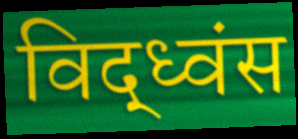
विद्ध्वंस